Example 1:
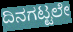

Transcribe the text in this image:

ದಿನಗಟ್ಟಲೇ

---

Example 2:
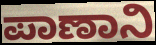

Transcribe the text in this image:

ಪಾಣಾನಿ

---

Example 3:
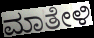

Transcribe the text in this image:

ಮಾತೇಳಿ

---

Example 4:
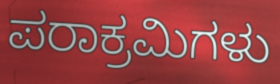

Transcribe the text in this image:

ಪರಾಕ್ರಮಿಗಳು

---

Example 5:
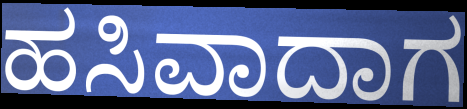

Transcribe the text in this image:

ಹಸಿವಾದಾಗ